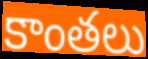
కాంతలు